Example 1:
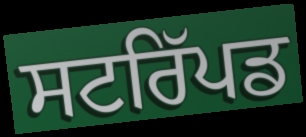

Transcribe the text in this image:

ਸਟਰਿੱਪਡ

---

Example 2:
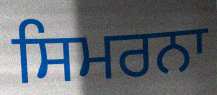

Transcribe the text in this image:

ਸਿਮਰਨਾ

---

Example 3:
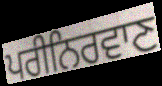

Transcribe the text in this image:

ਪਰੀਨਿਰਵਾਣ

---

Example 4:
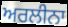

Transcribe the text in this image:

ਅਰਲੀਨਾ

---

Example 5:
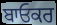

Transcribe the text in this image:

ਬਾਓਕਰ